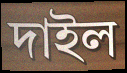
দাইল